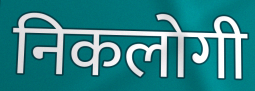
निकलोगी